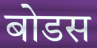
बोडस